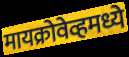
मायक्रोवेव्हमध्ये